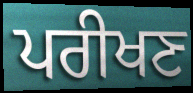
ਪਰੀਖਣ